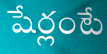
షేర్లంటే